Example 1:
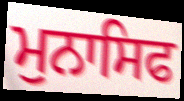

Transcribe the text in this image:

ਮੁਨਾਸਿਫ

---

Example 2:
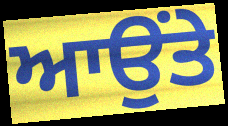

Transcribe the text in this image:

ਆਉਂਤੇ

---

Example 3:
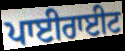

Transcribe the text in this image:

ਪਾਈਰਾਈਟ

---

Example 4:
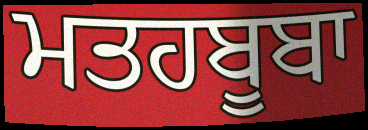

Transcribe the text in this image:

ਮਤਹਬੂਬਾ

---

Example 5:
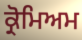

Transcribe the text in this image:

ਕ੍ਰੋਮਿਅਮ